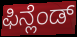
ಫಿನ್ಲೆಂಡ್